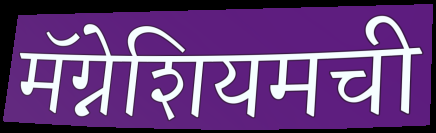
मॅग्नेशियमची